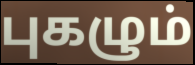
புகழும்